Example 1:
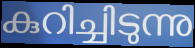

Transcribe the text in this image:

കുറിച്ചിടുന്നു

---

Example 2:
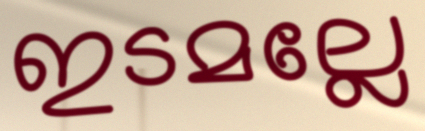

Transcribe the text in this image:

ഇടമല്ലേ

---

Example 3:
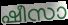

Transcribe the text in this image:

ഷീസാ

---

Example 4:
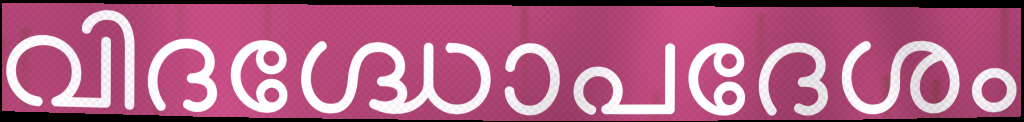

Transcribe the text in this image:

വിദഗ്ദ്ധോപദേശം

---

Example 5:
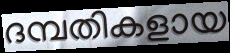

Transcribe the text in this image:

ദമ്പതികളായ